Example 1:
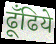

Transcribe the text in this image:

ढूँढिये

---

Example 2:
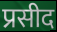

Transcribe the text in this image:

प्रसीद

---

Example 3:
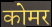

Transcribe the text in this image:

कोमर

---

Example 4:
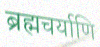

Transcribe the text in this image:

ब्रह्मचर्याणि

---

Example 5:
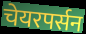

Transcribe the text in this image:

चेयरपर्सन